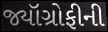
જ્યૉગ્રોફીની